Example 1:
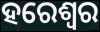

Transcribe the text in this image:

ହରେଶ୍ୱର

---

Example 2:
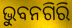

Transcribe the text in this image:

ଭୁବନଗିରି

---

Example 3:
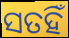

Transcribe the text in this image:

ସତହିଁ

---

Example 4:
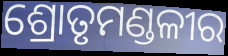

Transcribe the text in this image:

ଶ୍ରୋତୃମଣ୍ଡଳୀର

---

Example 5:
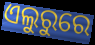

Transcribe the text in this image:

ଏଲୁରୁରେ